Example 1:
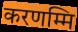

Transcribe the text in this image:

करणम्मि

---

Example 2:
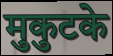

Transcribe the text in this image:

मुकुटके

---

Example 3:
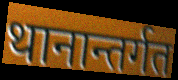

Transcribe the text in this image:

थानान्तर्गत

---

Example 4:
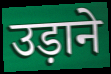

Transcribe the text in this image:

उड़ाने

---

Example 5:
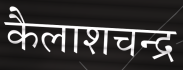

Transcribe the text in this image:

कैलाशचन्द्र